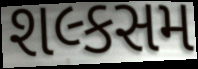
શલ્કસમ